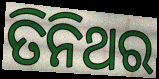
ତିନିଥର